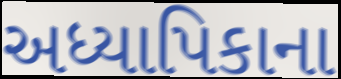
અધ્યાપિકાના